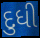
દુધી